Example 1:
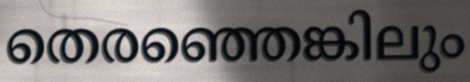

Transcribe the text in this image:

തെരഞ്ഞെങ്കിലും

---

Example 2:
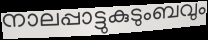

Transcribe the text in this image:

നാലപ്പാട്ടുകുടുംബവും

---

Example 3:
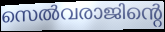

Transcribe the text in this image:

സെൽവരാജിന്റെ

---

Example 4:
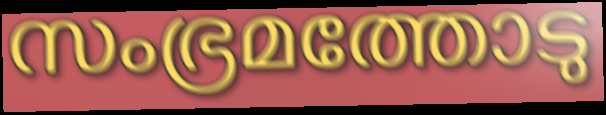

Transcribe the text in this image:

സംഭ്രമത്തോടു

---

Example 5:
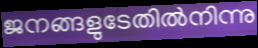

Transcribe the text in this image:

ജനങ്ങളുടേതിൽനിന്നു